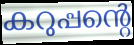
കറുപ്പന്റെ